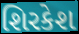
શિરકેશ